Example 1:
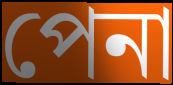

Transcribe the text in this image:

পেনা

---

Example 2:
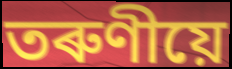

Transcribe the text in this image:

তৰুণীয়ে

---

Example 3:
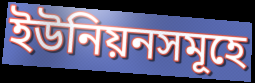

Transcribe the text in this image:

ইউনিয়নসমূহে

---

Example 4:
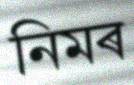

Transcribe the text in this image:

নিমৰ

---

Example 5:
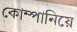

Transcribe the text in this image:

কোম্পানিয়ে